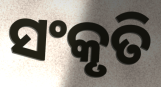
ସଂକୃତି